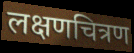
लक्षणचित्रण